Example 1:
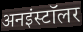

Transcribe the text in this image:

अनइंस्टॉलर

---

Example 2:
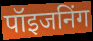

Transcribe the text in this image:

पॉइजनिंग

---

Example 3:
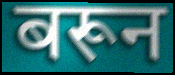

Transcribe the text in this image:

बरून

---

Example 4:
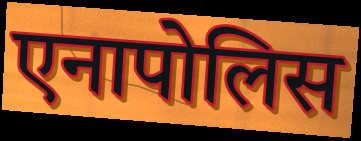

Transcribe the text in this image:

एनापोलिस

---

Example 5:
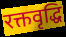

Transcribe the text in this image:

रक्तवृद्धि